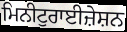
ਮਿਨੀਟੁਰਾਈਜ਼ੇਸ਼ਨ